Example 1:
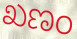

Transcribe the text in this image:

ಖಣಂ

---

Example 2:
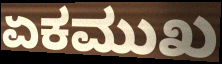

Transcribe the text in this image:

ಏಕಮುಖ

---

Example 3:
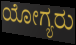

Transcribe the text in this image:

ಯೋಗ್ಯರು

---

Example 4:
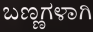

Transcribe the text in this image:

ಬಣ್ಣಗಳಾಗಿ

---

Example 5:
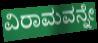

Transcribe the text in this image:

ವಿರಾಮವನ್ನೇ